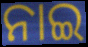
ନାଇ